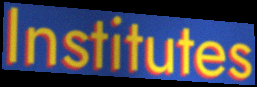
Institutes